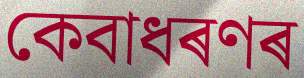
কেবাধৰণৰ